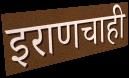
इराणचाही